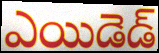
ఎయిడెడ్